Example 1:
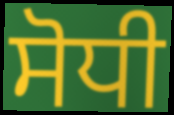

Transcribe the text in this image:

ਸੋਧੀ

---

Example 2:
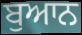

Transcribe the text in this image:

ਬੁਆਨ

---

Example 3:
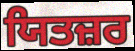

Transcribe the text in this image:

ਯਿਤਜ਼ਰ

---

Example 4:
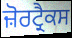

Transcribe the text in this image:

ਜ਼ੋਰਟ੍ਰੈਕਸ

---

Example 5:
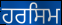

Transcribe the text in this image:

ਹਰਸਿਮ